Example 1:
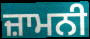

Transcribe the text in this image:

ਜ਼ਾਮਨੀ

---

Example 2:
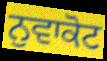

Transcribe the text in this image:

ਨੁਵਾਕੋਟ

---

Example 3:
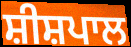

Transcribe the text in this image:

ਸ਼ੀਸ਼ਪਾਲ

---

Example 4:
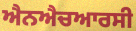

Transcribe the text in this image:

ਐਨਐਚਆਰਸੀ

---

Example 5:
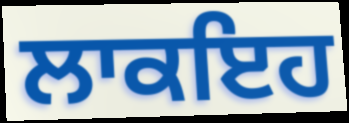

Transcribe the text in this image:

ਲਾਕਇਹ